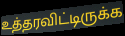
உத்தரவிட்டிருக்க